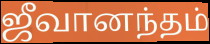
ஜீவானந்தம்